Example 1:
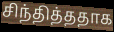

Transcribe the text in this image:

சிந்தித்ததாக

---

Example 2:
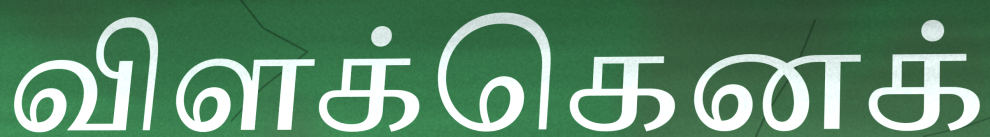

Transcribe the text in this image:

விளக்கெனக்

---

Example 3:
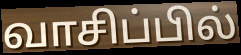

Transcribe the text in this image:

வாசிப்பில்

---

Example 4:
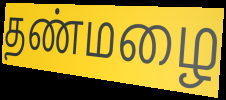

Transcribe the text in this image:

தண்மழை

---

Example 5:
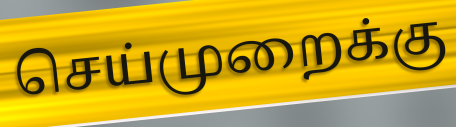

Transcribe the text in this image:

செய்முறைக்கு